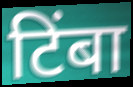
टिंबा